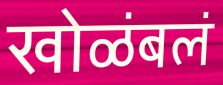
खोळंबलं